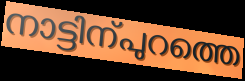
നാട്ടിന്പുറത്തെ